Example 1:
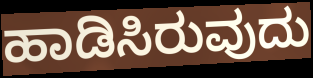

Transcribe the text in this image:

ಹಾಡಿಸಿರುವುದು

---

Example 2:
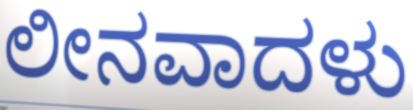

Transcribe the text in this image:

ಲೀನವಾದಳು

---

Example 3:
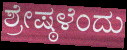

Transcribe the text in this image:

ಶ್ರೇಷ್ಠಳೆಂದು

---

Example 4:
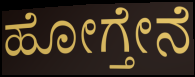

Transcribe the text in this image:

ಹೋಗ್ತೇನೆ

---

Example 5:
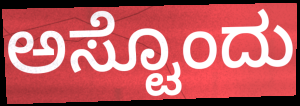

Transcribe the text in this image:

ಅಸ್ಟೊಂದು